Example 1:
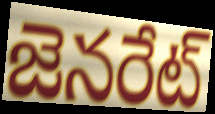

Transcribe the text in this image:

జెనరేట్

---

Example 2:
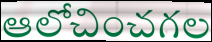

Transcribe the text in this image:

ఆలోచించగల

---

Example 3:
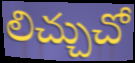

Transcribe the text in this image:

లిచ్చుచో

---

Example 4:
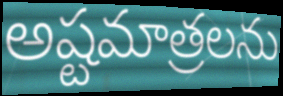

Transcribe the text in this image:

అష్టమాత్రలను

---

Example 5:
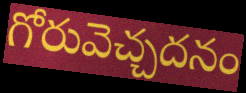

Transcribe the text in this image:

గోరువెచ్చదనం